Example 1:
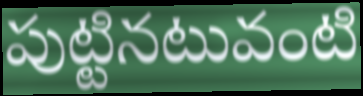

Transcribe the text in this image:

పుట్టినటువంటి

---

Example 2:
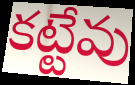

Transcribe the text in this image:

కట్టేవు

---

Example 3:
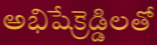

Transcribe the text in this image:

అభిషేక్రెడ్డిలతో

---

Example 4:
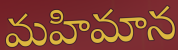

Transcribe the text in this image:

మహిమాన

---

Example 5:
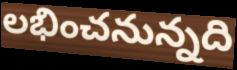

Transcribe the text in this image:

లభించనున్నది